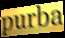
purba